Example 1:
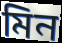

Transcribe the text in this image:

মিন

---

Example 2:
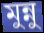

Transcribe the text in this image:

মুন্নু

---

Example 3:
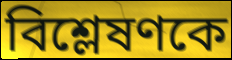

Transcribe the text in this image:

বিশ্লেষণকে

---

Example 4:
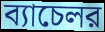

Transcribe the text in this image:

ব্যাচেলর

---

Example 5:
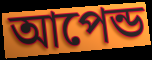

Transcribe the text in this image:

আপেন্ড